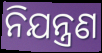
ନିଯନ୍ତ୍ରଣ